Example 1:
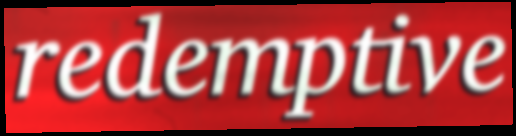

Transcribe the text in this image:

redemptive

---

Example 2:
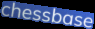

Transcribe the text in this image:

chessbase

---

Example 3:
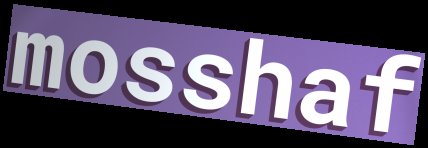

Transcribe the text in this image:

mosshaf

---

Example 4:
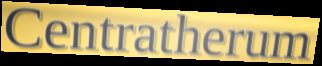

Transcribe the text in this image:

Centratherum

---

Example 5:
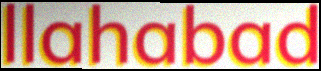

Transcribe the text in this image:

llahabad